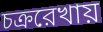
চক্ররেখায়